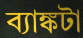
ব্যাঙ্কটা